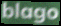
blago